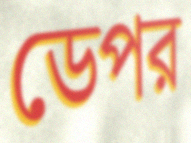
ডেপর